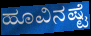
ಹೂವಿನಷ್ಟೆ